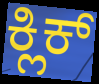
ಕ್ಲಿಕ್